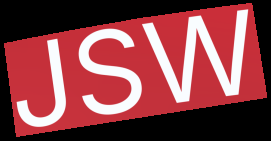
JSW